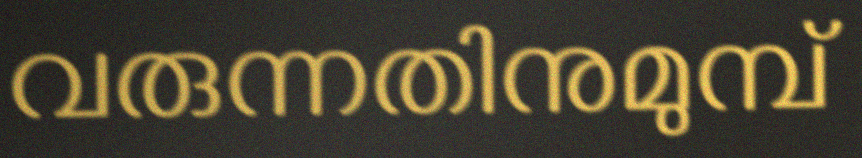
വരുന്നതിനുമുമ്പ്